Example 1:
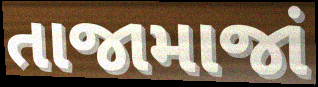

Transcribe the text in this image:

તાજામાજાં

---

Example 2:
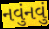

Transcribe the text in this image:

નવુંનવું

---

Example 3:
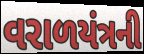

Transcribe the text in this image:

વરાળયંત્રની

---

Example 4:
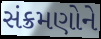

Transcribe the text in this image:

સંક્રમણોને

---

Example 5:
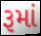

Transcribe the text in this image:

રૂમાં